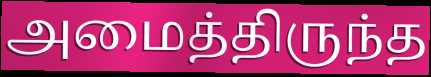
அமைத்திருந்த